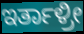
ಇರ್ತಾಳ್ರೀ